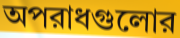
অপরাধগুলোর